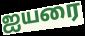
ஐயரை